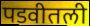
पडवीतली